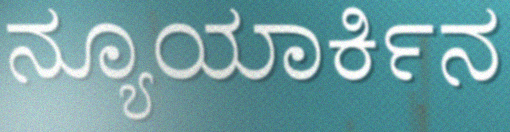
ನ್ಯೂಯಾರ್ಕಿನ